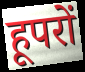
हूपरों